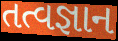
તત્વજ્ઞાન